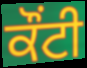
ਕੌਂਟੀ